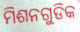
ମିଶନଗୁଡିକ